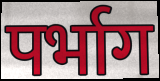
पर्भाग